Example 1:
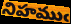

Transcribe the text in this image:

నిహముఁ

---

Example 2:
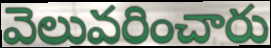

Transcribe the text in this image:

వెలువరించారు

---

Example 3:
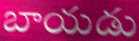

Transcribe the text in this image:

బాయడు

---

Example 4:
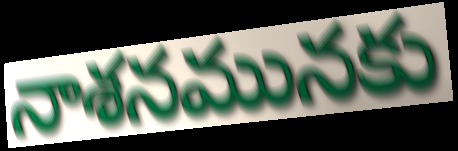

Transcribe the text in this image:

నాశనమునకు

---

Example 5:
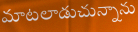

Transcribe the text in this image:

మాటలాడుచున్నాను